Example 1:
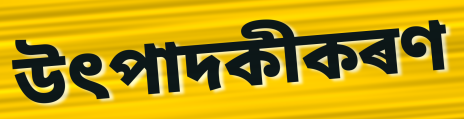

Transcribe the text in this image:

উৎপাদকীকৰণ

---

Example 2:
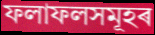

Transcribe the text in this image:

ফলাফলসমূহৰ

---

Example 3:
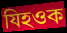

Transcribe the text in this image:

যিহওক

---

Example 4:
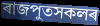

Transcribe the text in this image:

ৰাজপুতসকলৰ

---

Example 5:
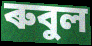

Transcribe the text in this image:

ৰুবুল